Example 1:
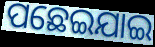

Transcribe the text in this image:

ପଛେଇଯାଇ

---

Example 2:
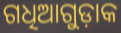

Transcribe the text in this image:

ଗଧିଆଗୁଡ଼ାକ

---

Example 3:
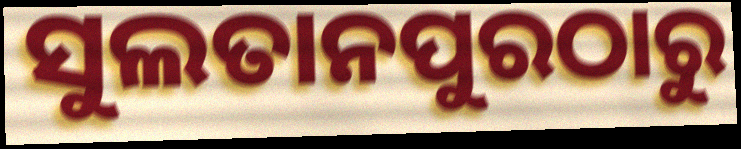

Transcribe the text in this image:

ସୁଲତାନପୁରଠାରୁ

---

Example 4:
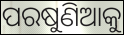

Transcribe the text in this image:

ପରଷୁଣିଆକୁ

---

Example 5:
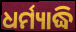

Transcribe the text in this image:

ଧର୍ମ୍ୟାଦ୍ଧି